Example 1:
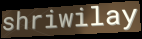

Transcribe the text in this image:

shriwilay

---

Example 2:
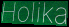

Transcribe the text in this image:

Holika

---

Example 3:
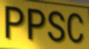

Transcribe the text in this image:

PPSC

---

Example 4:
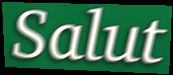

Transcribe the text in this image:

Salut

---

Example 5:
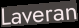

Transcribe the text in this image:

Laveran